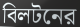
বিলটনের